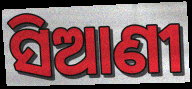
ସିଆଣୀ